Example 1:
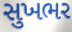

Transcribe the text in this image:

સુખભર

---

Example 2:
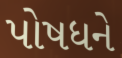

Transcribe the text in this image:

પોષધને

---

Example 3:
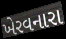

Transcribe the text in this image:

ખેરવનારા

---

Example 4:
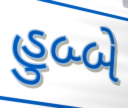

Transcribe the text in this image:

હુબ્બે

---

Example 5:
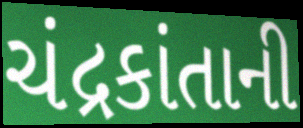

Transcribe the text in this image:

ચંદ્રકાંતાની